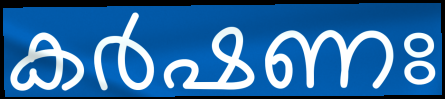
കർഷണഃ